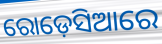
ରୋଡ଼େସିଆରେ